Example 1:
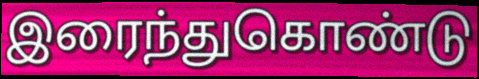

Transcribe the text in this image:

இரைந்துகொண்டு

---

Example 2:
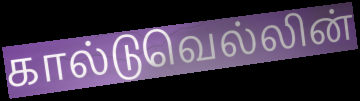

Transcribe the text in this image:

கால்டுவெல்லின்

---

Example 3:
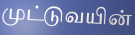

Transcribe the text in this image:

முட்டுவயின்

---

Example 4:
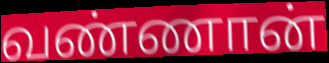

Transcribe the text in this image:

வண்ணான்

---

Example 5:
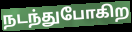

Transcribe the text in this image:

நடந்துபோகிற